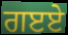
ਗੲਏ